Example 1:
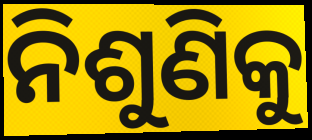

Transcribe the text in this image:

ନିଶୁଣିକୁ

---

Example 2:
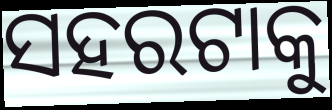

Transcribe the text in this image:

ସହରଟାକୁ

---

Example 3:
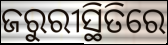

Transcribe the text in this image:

ଜରୁରୀସ୍ଥିତିରେ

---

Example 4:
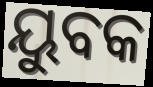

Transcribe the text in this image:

ୟୁବକ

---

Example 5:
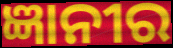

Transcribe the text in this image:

ଜ୍ଞାନୀର